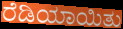
ರೆಡಿಯಾಯಿತು